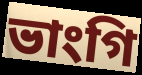
ভাংগি